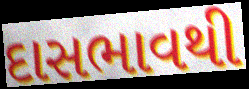
દાસભાવથી